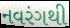
નવરંગથી